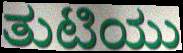
ತುಟಿಯು